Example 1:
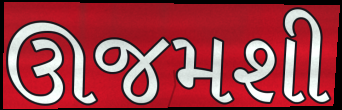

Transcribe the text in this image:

ઊજમશી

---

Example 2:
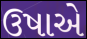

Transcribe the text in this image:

ઉષાએ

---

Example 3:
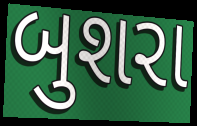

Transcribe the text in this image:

બુશરા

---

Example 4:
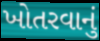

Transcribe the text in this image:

ખોતરવાનું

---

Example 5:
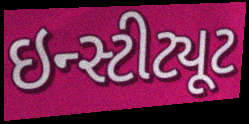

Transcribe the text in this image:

ઇન્સ્ટીટ્યૂટ